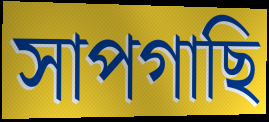
সাপগাছি